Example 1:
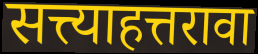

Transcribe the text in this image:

सत्त्याहत्तरावा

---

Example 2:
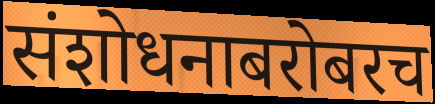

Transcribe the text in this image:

संशोधनाबरोबरच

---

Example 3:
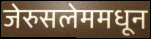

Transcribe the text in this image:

जेरुसलेममधून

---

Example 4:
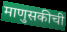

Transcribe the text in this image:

माणुसकीची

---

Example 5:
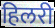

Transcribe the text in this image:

हिलरी